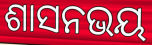
ଶାସନଭୟ